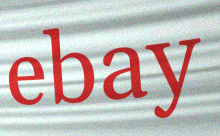
ebay